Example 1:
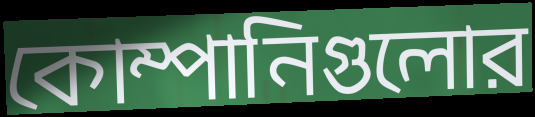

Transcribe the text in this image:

কোম্পানিগুলোর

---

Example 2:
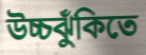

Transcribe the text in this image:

উচ্চঝুঁকিতে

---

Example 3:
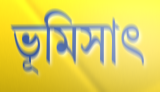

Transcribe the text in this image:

ভূমিসাৎ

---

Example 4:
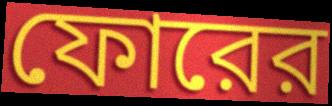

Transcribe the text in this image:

ফোরের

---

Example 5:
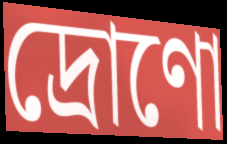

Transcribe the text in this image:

দ্রোণো